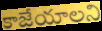
కాజేయాలని